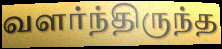
வளர்ந்திருந்த